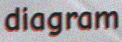
diagram